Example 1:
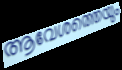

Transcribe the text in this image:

ആവേശത്തെയും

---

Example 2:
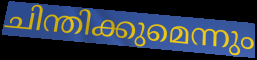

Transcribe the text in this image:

ചിന്തിക്കുമെന്നും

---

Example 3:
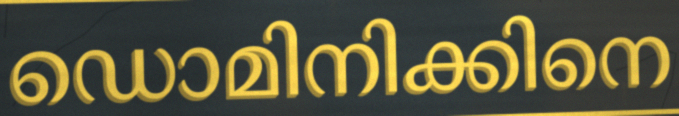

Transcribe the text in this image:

ഡൊമിനിക്കിനെ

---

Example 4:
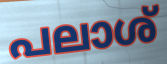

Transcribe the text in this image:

പലാശ്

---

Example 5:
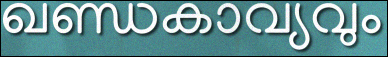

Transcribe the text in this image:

ഖണ്ഡകാവ്യവും